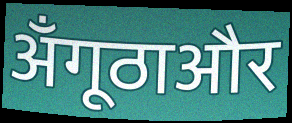
अँगूठाऔर